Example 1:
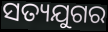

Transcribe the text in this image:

ସତ୍ୟଯୁଗର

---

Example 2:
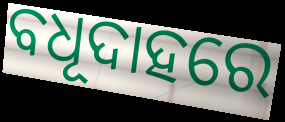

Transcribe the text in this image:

ବଧୂଦାହରେ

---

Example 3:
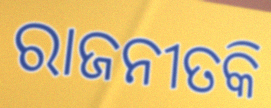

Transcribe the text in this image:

ରାଜନୀତକି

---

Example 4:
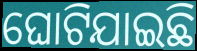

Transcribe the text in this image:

ଘୋଟିଯାଇଛି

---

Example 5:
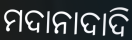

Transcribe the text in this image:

ମଦାନାଦାଦି